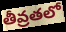
తీవ్రతలో